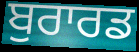
ਬੁਰਾਰਡ